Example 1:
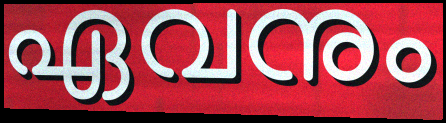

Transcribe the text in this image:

ഏവനും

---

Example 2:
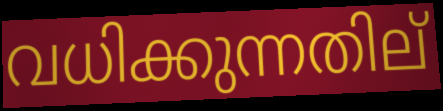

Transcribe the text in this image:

വധിക്കുന്നതില്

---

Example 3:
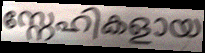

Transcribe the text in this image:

സ്നേഹികളായ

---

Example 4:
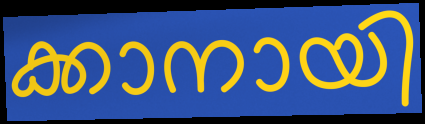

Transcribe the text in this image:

ക്കാനായി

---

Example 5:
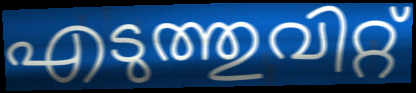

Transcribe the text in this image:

എടുത്തുവിറ്റ്